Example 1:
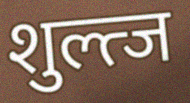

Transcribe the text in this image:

शुल्त्ज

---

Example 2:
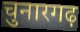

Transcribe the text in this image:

चुनारगढ़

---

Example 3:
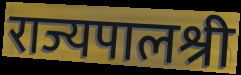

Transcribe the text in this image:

राज्यपालश्री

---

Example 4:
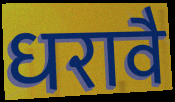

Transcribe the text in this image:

धरावै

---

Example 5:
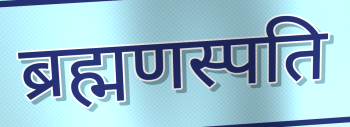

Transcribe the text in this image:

ब्रह्मणस्पति